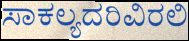
ಸಾಕಲ್ಯದರಿವಿರಲಿ